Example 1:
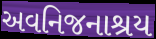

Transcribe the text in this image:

અવનિજનાશ્રય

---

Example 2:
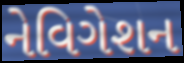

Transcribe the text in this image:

નેવિગેશન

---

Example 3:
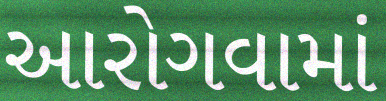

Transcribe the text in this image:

આરોગવામાં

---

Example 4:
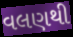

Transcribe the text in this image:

વલણથી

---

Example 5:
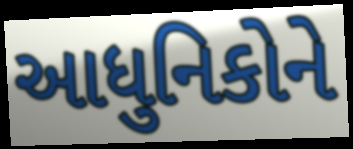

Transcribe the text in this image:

આધુનિકોને